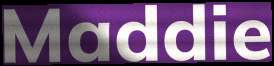
Maddie